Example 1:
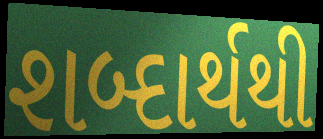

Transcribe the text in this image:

શબ્દાર્થથી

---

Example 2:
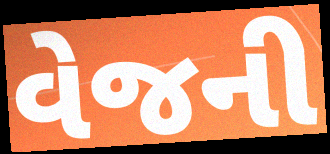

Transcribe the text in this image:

વેજની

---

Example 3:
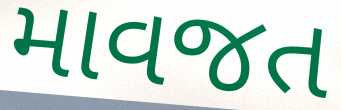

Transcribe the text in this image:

માવજત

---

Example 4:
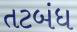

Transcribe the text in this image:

તટબંધ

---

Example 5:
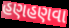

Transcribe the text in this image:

હણહણવા